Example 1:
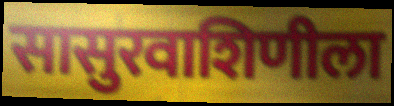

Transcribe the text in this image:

सासुरवाशिणीला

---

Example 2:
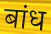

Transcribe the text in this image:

बांध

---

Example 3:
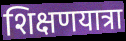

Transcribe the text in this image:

शिक्षणयात्रा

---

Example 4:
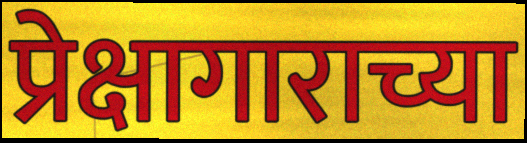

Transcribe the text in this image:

प्रेक्षागाराच्या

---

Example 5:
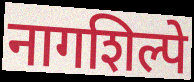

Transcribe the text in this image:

नागशिल्पे